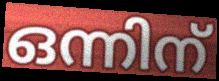
ഒന്നിന്